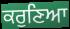
ਕਰੁਣਿਆ